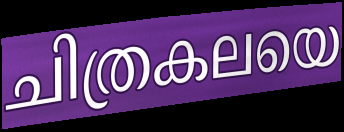
ചിത്രകലയെ